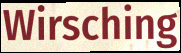
Wirsching